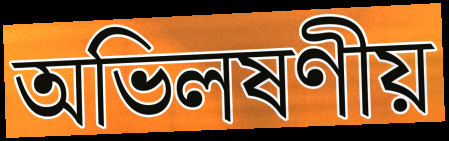
অভিলষণীয়